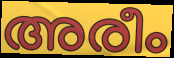
അരീം